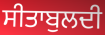
ਸੀਤਾਬੁਲਦੀ